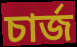
চাৰ্জ